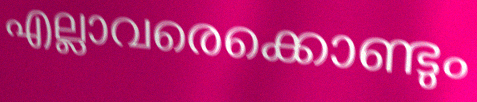
എല്ലാവരെക്കൊണ്ടും